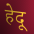
हेदू